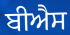
ਬੀਐਸ